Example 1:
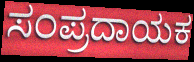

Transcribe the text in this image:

ಸಂಪ್ರದಾಯಕ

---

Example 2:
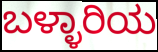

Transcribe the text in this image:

ಬಳ್ಳಾರಿಯ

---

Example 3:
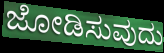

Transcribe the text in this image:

ಜೋಡಿಸುವುದು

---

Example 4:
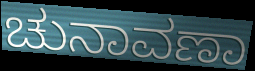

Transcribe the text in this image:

ಚುನಾವಣಾ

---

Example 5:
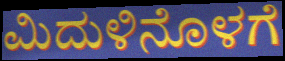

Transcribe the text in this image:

ಮಿದುಳಿನೊಳಗೆ